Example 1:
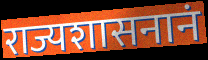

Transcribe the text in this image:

राज्यशासनानं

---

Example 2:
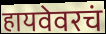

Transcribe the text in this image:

हायवेवरचं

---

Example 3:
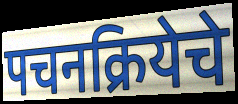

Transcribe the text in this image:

पचनक्रियेचे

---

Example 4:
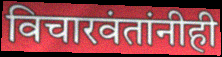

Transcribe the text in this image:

विचारवंतांनीही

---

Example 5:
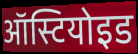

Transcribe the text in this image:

ऑस्टियोइड